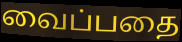
வைப்பதை